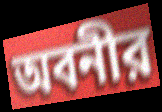
অবনীর